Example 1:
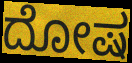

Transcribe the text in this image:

ದೋಷ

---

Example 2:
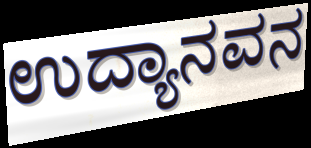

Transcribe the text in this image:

ಉದ್ಯಾನವನ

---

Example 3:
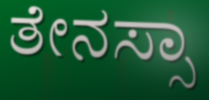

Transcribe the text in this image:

ತೇನಸ್ಸಾ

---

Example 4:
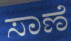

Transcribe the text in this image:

ಸಾಣೆ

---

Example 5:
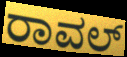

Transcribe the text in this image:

ರಾವಲ್